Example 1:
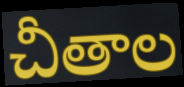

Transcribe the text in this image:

చీతాల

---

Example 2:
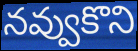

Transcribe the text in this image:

నవ్వుకొని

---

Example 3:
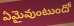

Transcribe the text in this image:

ఏమైవుంటుందో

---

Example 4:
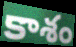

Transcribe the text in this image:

కాశం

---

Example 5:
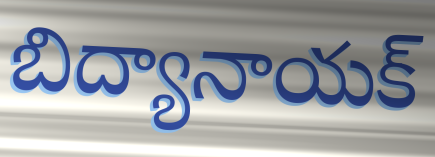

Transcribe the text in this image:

బిద్యానాయక్